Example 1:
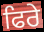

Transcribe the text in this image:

ਫਿਰੇ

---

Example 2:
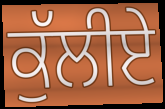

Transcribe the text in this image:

ਕੁੱਲੀਏ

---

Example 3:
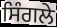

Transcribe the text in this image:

ਸਿੰਗਲੇ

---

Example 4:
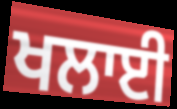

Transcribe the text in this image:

ਖਲਾਈ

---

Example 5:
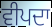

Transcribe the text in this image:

ਵੀਪਦਾ